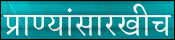
प्राण्यांसारखीच